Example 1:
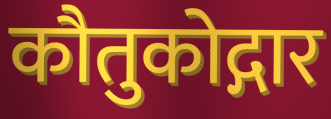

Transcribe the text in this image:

कौतुकोद्गार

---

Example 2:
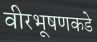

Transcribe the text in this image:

वीरभूषणकडे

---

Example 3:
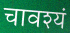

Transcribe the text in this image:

चावश्यं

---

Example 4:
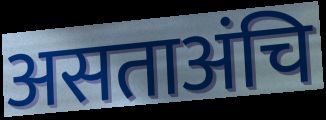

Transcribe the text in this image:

असताअंचि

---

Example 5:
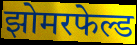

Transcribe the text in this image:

झोमरफेल्ड